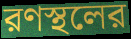
রণস্থলের